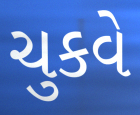
ચુકવે